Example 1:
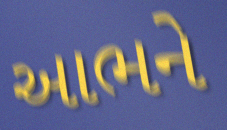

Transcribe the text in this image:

આભને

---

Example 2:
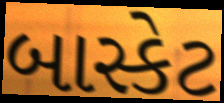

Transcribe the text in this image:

બાસ્કેટ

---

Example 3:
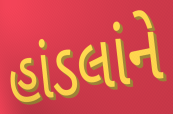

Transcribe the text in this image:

હાંડલાંને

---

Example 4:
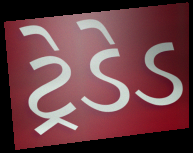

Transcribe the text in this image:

ટ્રેડેડ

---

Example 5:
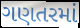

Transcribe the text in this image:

ગણતરમાં